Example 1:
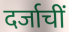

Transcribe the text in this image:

दर्जाचीं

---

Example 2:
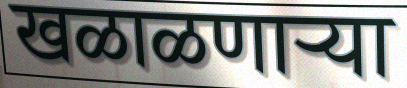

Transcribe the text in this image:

खळाळणाऱ्या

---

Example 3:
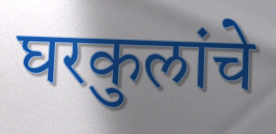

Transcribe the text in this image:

घरकुलांचे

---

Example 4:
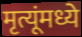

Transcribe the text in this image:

मृत्यूंमध्ये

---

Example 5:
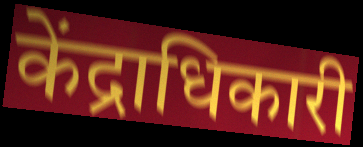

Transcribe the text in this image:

केंद्राधिकारी